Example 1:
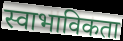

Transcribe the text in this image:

स्वाभाविकता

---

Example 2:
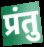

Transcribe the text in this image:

प्रंतु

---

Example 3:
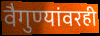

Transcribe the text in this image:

वैगुण्यांवरही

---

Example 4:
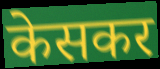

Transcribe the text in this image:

केसकर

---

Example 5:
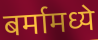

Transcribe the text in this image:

बर्मामध्ये